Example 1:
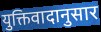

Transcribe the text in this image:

युक्तिवादानुसार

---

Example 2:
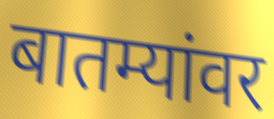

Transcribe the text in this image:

बातम्यांवर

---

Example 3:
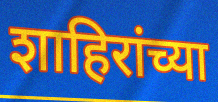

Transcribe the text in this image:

शाहिरांच्या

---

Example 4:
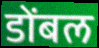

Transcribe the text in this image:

डोंबल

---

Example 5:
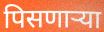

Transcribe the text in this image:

पिसणाऱ्या